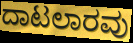
ದಾಟಲಾರವು